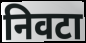
निवटा